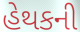
હેથકની